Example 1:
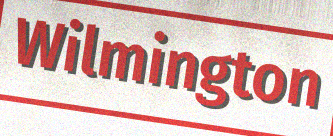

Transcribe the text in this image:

Wilmington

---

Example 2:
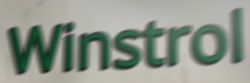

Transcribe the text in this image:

Winstrol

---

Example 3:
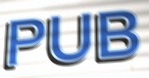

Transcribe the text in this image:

PUB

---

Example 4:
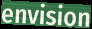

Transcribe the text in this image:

envision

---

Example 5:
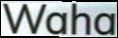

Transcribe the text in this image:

Waha